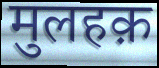
मुलहक़